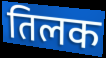
तिलक